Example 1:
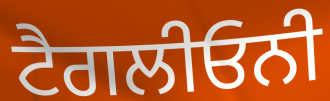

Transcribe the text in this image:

ਟੈਗਲੀਓਨੀ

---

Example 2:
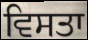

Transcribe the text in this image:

ਵਿਸਤਾ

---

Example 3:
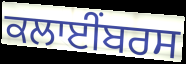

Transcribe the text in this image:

ਕਲਾਈਂਬਰਸ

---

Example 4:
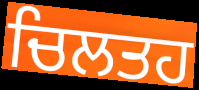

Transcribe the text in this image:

ਚਿਲਤਹ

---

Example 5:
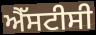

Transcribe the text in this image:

ਐੱਸਟੀਸੀ